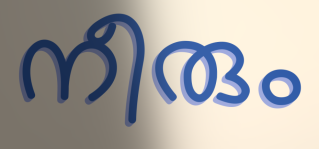
നീരും